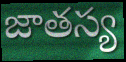
జాతస్య